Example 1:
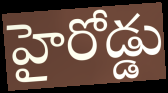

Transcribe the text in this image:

హైరోడ్డు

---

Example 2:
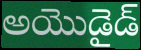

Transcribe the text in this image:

అయొడైడ్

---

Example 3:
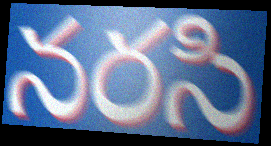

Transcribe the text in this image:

నరసి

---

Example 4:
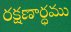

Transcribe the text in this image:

రక్షణార్ధము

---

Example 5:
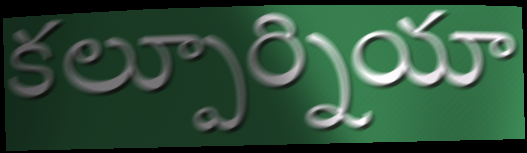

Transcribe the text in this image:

కల్పూర్నియా